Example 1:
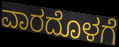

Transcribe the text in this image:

ವಾರದೊಳಗೆ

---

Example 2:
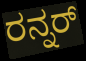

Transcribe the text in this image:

ರನ್ನರ್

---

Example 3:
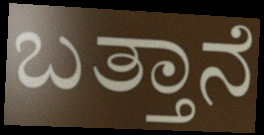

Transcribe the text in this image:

ಬತ್ತಾನೆ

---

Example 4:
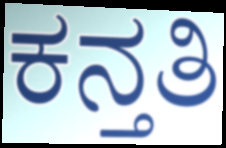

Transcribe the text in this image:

ಕನ್ತತಿ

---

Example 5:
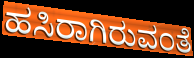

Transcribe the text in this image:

ಹಸಿರಾಗಿರುವಂತೆ